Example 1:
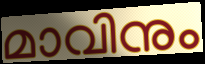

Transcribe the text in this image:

മാവിനും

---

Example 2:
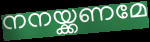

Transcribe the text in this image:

നനയ്ക്കണമേ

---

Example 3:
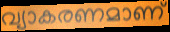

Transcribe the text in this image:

വ്യാകരണമാണ്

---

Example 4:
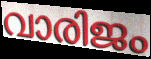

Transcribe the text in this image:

വാരിജം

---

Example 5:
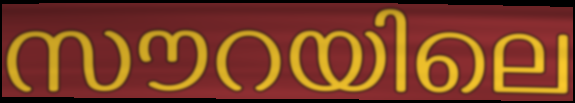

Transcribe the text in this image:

സൗറയിലെ